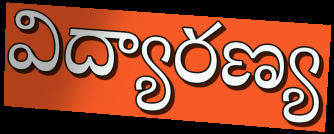
విద్యారణ్య